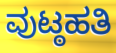
ವುಟ್ಠಹತಿ